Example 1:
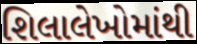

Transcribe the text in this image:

શિલાલેખોમાંથી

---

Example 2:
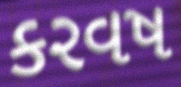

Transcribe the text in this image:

કરવષ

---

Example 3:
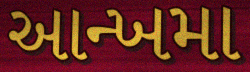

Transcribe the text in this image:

આન્ખમા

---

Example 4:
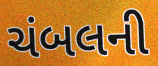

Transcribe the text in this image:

ચંબલની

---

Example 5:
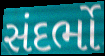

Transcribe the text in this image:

સંદર્ભો